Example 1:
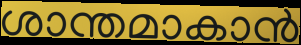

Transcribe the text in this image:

ശാന്തമാകാൻ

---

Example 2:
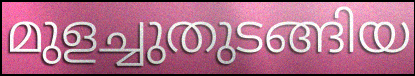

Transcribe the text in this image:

മുളച്ചുതുടങ്ങിയ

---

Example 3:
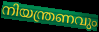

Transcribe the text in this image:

നിയന്ത്രണവും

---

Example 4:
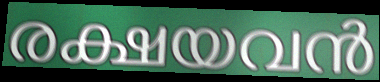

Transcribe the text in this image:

രക്ഷയവൻ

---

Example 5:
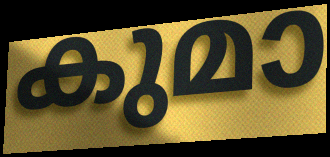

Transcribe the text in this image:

കുമാ